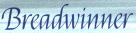
Breadwinner